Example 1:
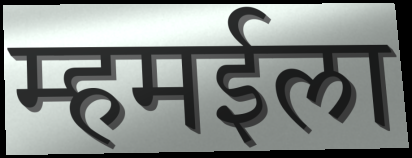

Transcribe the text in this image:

म्हमईला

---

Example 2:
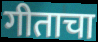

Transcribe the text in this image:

गीताचा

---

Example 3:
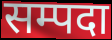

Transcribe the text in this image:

सम्पदा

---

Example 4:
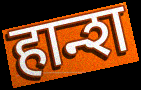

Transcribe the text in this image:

हान्श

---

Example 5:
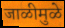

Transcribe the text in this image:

जाळीमुळे